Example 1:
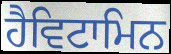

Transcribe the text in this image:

ਹੈਵਿਟਾਮਿਨ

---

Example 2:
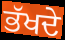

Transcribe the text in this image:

ਭੱਖਦੇ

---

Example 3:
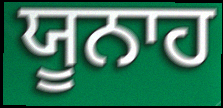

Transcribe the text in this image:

ਯੂਨਾਹ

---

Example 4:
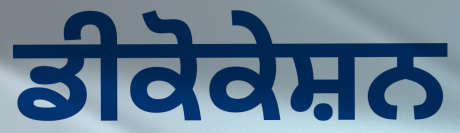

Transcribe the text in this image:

ਡੀਕੋਕੇਸ਼ਨ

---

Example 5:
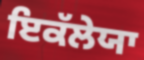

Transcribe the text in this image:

ਇਕੱਲੇਯਾ